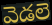
వెడలె